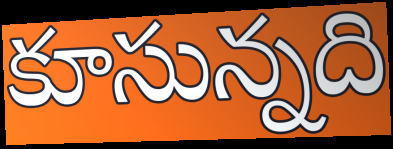
కూసున్నది